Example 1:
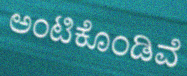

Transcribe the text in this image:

ಅಂಟಿಕೊಂಡಿವೆ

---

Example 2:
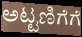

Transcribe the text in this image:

ಅಟ್ಟಣಿಗೆಗೆ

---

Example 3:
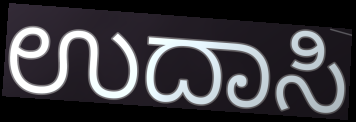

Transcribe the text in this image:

ಉದಾಸಿ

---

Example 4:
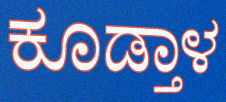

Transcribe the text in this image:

ಕೂಡ್ತಾಳ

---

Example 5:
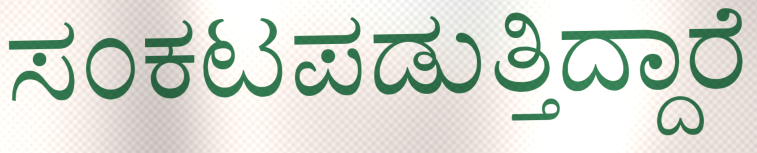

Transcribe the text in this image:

ಸಂಕಟಪಡುತ್ತಿದ್ದಾರೆ